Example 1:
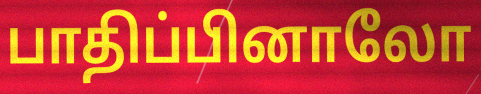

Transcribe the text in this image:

பாதிப்பினாலோ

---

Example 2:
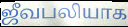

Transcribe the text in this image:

ஜீவபலியாக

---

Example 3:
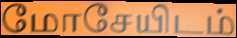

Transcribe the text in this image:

மோசேயிடம்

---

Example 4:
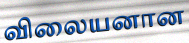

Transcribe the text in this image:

விலையனான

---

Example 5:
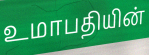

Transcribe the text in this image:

உமாபதியின்